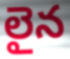
లైన